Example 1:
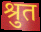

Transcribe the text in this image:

श्रुत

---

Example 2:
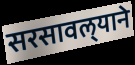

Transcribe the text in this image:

सरसावल्याने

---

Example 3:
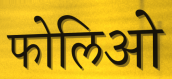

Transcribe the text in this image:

फोलिओ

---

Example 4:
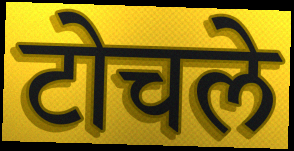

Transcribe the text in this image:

टोचले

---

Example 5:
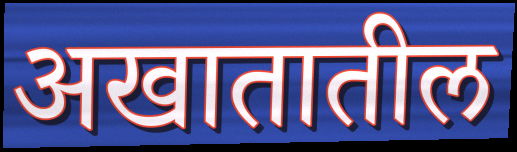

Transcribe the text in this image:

अखातातील